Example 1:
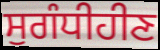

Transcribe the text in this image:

ਸੁਗੰਧੀਹੀਣ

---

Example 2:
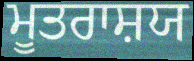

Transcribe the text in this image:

ਮੂਤਰਾਸ਼ਯ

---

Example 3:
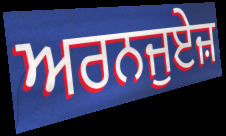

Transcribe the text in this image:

ਅਰਨਜੁਏਜ਼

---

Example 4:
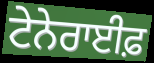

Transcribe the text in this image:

ਟੇਨੇਰਾਈਫ਼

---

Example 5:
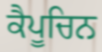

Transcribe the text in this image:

ਕੈਪੂਚਿਨ